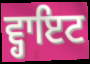
ਵ੍ਹਾਇਟ